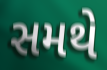
સમથે